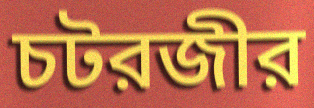
চটরজীর